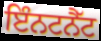
ਇੰਨਟਨੈੱਟ